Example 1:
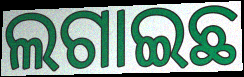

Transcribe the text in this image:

ଲଗାଇଛ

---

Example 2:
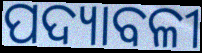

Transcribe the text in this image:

ପଦ୍ୟାବଳୀ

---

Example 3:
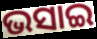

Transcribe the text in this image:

ଭସାଇ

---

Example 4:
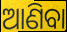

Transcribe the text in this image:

ଆଣିବା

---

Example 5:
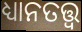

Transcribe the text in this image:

ଧ୍ୟାନତତ୍ତ୍ୱ